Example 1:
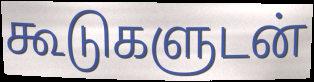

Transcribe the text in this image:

கூடுகளுடன்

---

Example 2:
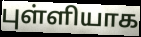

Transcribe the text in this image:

புள்ளியாக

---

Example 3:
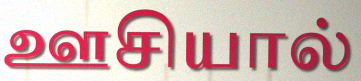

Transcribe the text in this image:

ஊசியால்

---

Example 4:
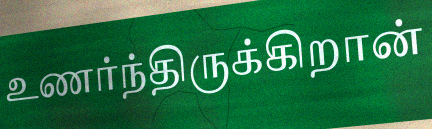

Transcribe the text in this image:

உணர்ந்திருக்கிறான்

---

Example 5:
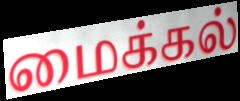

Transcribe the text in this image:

மைக்கல்